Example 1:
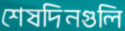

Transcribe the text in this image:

শেষদিনগুলি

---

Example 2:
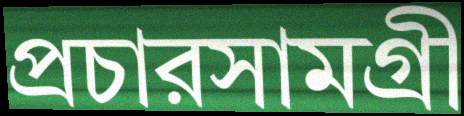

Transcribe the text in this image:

প্রচারসামগ্রী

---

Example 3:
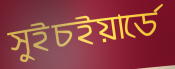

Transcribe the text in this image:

সুইচইয়ার্ডে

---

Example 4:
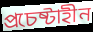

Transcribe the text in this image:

প্রচেষ্টাহীন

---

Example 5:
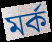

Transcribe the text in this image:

মর্ক